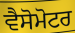
ਵੈਸੋਮੋਟਰ